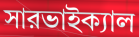
সারভাইক্যাল